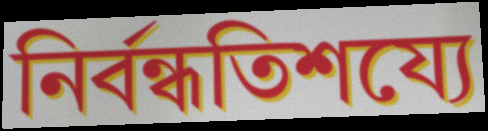
নির্বন্ধতিশয্যে